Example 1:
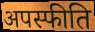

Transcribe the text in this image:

अपस्फीति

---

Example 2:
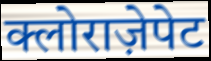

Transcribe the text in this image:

क्लोराज़ेपेट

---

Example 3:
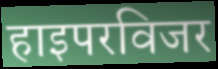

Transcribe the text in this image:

हाइपरविजर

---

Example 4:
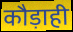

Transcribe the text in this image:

कौड़ाही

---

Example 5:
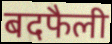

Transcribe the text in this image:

बदफैली